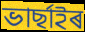
ভাৰ্ছাইৰ